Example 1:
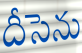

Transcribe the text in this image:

దీసెను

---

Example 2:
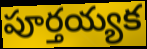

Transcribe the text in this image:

పూర్తయ్యక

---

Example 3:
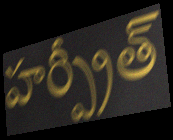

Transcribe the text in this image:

హర్ప్రీత్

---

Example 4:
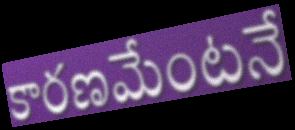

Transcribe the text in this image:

కారణమేంటనే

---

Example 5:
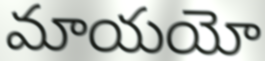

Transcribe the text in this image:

మాయయో